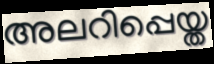
അലറിപ്പെയ്ത